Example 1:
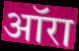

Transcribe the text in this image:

ऑरा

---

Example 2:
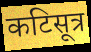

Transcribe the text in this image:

कटिसूत्र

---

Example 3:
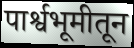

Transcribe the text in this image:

पार्श्वभूमीतून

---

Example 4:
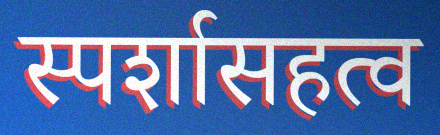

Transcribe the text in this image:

स्पर्शासहत्व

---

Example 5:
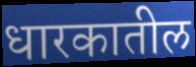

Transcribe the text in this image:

धारकातील